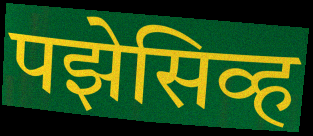
पझेसिव्ह